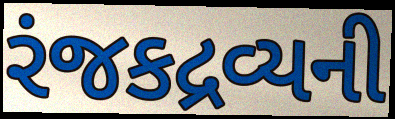
રંજકદ્રવ્યની